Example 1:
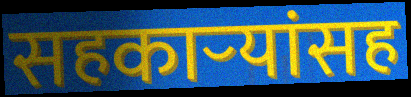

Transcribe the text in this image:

सहकाऱ्यांसह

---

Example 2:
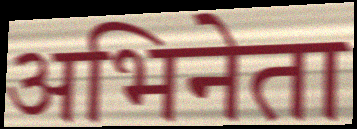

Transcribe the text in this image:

अभिनेता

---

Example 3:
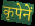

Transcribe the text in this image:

कृपेनें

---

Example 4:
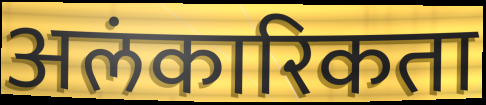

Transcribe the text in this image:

अलंकारिकता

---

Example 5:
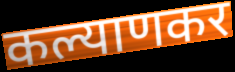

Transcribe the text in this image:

कल्याणकर